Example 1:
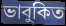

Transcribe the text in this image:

ভাবুকিত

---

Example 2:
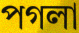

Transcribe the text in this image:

পগলা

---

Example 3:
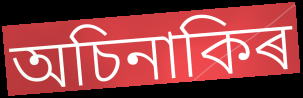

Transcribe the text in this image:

অচিনাকিৰ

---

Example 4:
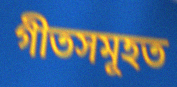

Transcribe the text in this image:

গীতসমূহত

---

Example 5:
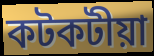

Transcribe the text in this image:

কটকটীয়া